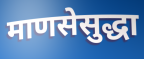
माणसेसुद्धा